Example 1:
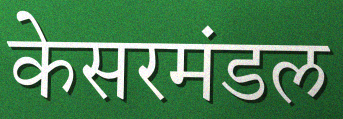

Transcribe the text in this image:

केसरमंडल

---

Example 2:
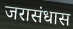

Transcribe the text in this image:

जरासंधास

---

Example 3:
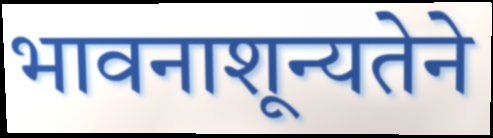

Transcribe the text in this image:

भावनाशून्यतेने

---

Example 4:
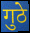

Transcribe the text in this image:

गुठे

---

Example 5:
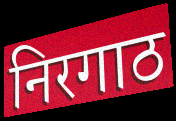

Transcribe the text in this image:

निरगाठ